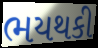
ભયથકી